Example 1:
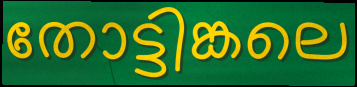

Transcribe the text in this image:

തോട്ടിങ്കലെ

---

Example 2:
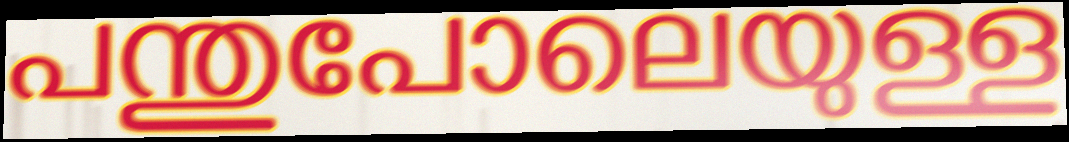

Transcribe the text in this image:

പന്തുപോലെയുള്ള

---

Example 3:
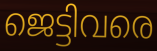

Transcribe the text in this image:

ജെട്ടിവരെ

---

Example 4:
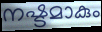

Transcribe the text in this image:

നഷ്ടമാകും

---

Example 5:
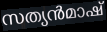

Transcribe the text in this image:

സത്യൻമാഷ്